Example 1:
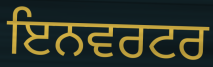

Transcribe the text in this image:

ਇਨਵਰਟਰ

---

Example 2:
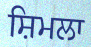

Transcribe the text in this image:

ਸ਼ਿਮਲਾ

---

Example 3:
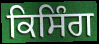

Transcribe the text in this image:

ਕਿਸਿੰਗ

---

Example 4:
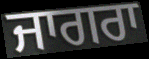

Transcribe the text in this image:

ਜਾਗਰਾ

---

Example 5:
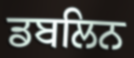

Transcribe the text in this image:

ਡਬਲਿਨ